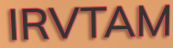
IRVTAM